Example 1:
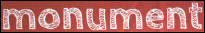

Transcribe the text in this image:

monument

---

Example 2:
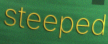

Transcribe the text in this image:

steeped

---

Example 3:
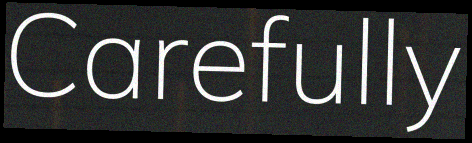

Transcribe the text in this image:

Carefully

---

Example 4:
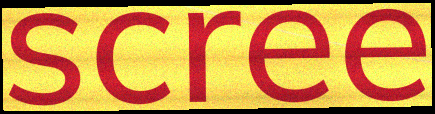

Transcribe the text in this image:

scree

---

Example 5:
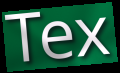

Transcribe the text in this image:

Tex